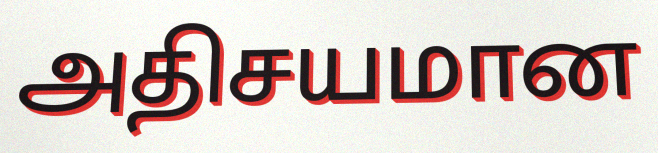
அதிசயமான